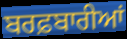
ਬਰਫ਼ਬਾਰੀਆਂ